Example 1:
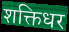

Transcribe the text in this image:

शक्तिधर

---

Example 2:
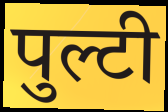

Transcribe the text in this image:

पुल्टी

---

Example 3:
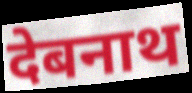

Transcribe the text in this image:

देबनाथ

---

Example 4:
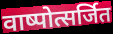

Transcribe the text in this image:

वाष्पोत्सर्जित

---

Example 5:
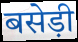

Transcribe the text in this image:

बसेड़ी